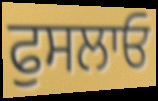
ਫੁਸਲਾਓ